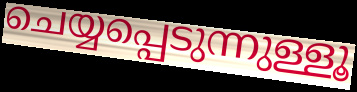
ചെയ്യപ്പെടുന്നുള്ളൂ